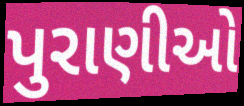
પુરાણીઓ